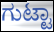
ಗುಟ್ಟಾ